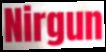
Nirgun